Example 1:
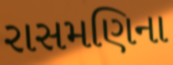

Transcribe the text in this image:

રાસમણિના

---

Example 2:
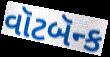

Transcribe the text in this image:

વૉટબૅન્ક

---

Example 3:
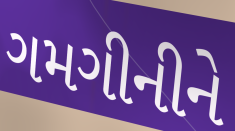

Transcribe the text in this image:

ગમગીનીને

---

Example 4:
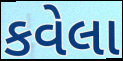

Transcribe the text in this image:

કવેલા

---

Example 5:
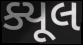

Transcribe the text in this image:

ક્યૂલ